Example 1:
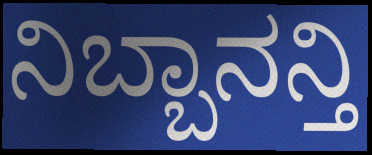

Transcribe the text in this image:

ನಿಬ್ಬಾನನ್ತಿ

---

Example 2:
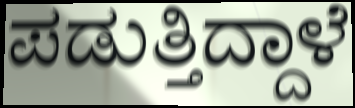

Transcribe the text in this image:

ಪಡುತ್ತಿದ್ದಾಳೆ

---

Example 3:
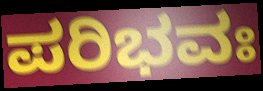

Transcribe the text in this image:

ಪರಿಭವಃ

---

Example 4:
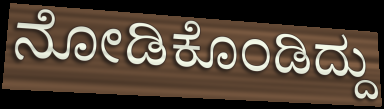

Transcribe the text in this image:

ನೋಡಿಕೊಂಡಿದ್ದು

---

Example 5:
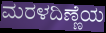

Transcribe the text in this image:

ಮರಳದಿಣ್ಣೆಯ